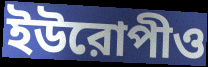
ইউরোপীও